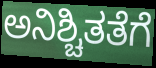
ಅನಿಶ್ಚಿತತೆಗೆ